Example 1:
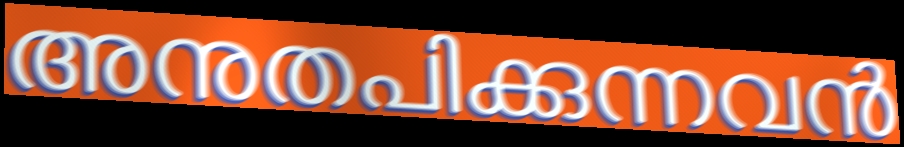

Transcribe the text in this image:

അനുതപിക്കുന്നവൻ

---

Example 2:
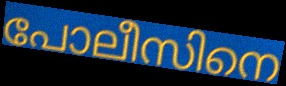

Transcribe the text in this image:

പോലീസിനെ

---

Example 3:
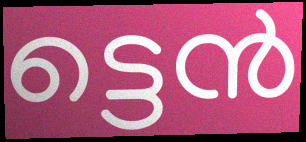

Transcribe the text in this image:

ട്ടെൻ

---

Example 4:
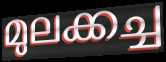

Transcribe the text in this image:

മുലക്കച്ച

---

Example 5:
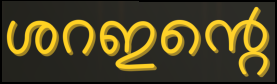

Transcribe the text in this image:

ശറഇന്റെ